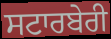
ਸਟਾਰਬੇਰੀ